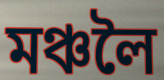
মঞ্চলৈ